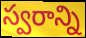
స్వరాన్ని